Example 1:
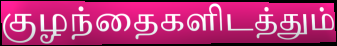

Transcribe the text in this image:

குழந்தைகளிடத்தும்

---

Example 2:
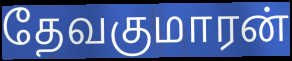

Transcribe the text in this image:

தேவகுமாரன்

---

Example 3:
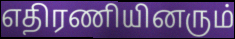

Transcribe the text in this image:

எதிரணியினரும்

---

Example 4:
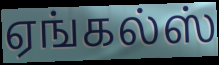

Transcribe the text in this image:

ஏங்கல்ஸ்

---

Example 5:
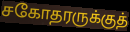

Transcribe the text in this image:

சகோதரருக்குத்